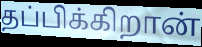
தப்பிக்கிறான்